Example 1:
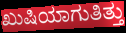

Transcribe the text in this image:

ಖುಷಿಯಾಗುತಿತ್ತು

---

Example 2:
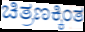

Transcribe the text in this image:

ಚಿತ್ರಣಕ್ಕಿಂತ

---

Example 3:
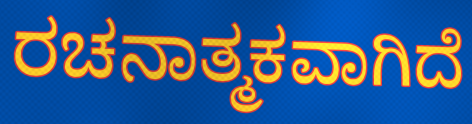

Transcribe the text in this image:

ರಚನಾತ್ಮಕವಾಗಿದೆ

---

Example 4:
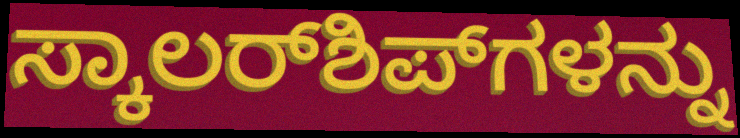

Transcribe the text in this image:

ಸ್ಕಾಲರ್‌ಶಿಪ್‌ಗಳನ್ನು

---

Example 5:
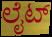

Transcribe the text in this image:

ಲೈಟ್